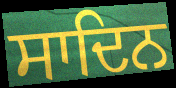
ਸਾਦਿਨ